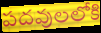
పదవులలోకి